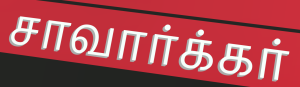
சாவார்க்கர்